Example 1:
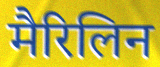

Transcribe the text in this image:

मैरिलिन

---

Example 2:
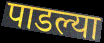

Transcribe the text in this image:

पाडल्या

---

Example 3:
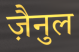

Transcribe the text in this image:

ज़ैनुल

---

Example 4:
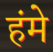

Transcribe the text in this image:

हंमे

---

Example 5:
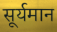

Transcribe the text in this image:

सूर्यमान